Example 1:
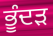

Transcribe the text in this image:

ਭੂੰਦੜ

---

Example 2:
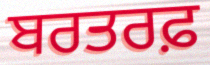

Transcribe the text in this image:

ਬਰਤਰਫ਼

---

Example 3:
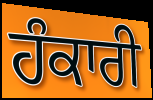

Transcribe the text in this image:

ਹੰਕਾਰੀ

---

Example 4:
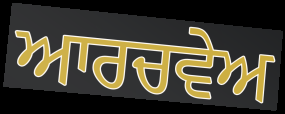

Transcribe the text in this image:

ਆਰਚਵੇਅ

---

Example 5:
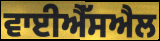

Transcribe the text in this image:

ਵਾਈਐੱਸਐਲ